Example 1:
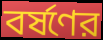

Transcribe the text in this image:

বর্ষণের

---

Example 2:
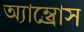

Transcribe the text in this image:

অ্যাম্ব্রোস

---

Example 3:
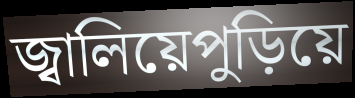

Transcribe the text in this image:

জ্বালিয়েপুড়িয়ে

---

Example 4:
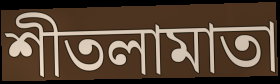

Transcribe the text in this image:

শীতলামাতা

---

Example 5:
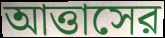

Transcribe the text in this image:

আত্তাসের